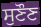
ਸੁਣੌਣ